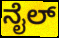
ನೈಲ್